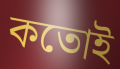
কতোই